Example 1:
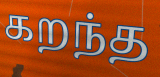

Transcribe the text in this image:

கறந்த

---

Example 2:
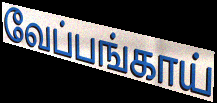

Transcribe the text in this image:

வேப்பங்காய்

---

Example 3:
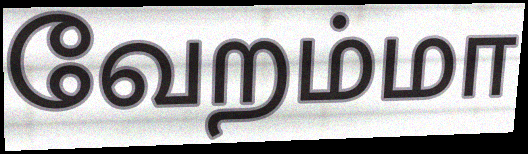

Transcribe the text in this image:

வேறம்மா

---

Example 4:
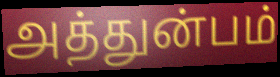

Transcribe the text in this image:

அத்துன்பம்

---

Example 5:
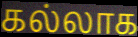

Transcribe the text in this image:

கல்லாக